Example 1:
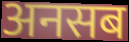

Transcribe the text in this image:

अनसब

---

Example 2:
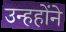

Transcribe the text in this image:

उन्हहोंने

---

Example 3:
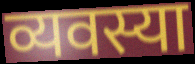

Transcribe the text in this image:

व्यवस्या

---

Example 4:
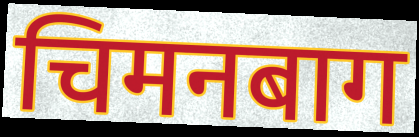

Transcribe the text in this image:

चिमनबाग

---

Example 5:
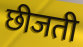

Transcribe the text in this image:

छीजती